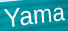
Yama